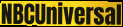
NBCUniversal